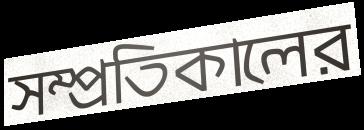
সম্প্রতিকালের